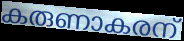
കരുണാകരന്